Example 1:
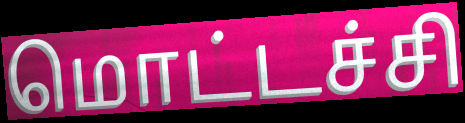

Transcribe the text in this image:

மொட்டச்சி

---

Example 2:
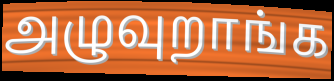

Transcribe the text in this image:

அழுவுறாங்க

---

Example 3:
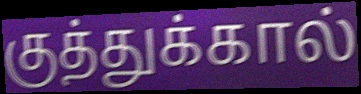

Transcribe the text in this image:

குத்துக்கால்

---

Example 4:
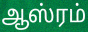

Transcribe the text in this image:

ஆஸ்ரம்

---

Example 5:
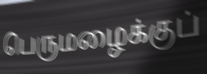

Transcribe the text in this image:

பெருமழைக்குப்